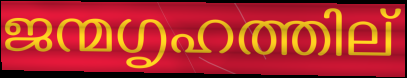
ജന്മഗൃഹത്തില്